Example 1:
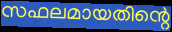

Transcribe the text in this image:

സഫലമായതിന്റെ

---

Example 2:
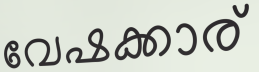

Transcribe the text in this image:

വേഷക്കാര്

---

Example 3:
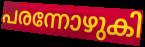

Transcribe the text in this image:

പരന്നോഴുകി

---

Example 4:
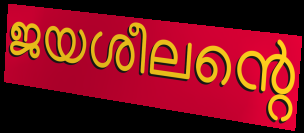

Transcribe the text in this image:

ജയശീലന്റെ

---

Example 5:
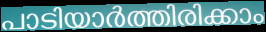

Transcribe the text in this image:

പാടിയാർത്തിരിക്കാം